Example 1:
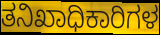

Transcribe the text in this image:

ತನಿಖಾಧಿಕಾರಿಗಳ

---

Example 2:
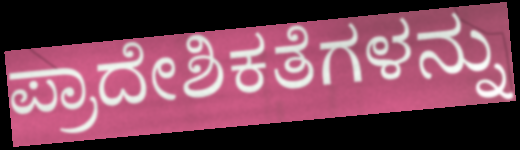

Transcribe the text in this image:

ಪ್ರಾದೇಶಿಕತೆಗಳನ್ನು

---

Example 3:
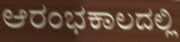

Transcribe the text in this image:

ಆರಂಭಕಾಲದಲ್ಲಿ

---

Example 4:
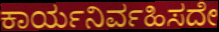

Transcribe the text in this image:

ಕಾರ್ಯನಿರ್ವಹಿಸದೇ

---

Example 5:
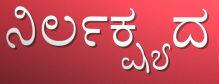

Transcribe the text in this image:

ನಿರ್ಲಕ್ಷ್ಯದ